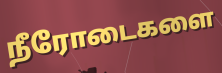
நீரோடைகளை